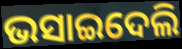
ଭସାଇଦେଲି